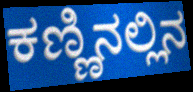
ಕಣ್ಣಿನಲ್ಲಿನ